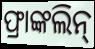
ଫ୍ରାଙ୍କଲିନ୍